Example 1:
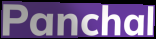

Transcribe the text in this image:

Panchal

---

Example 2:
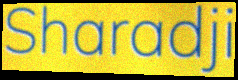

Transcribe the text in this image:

Sharadji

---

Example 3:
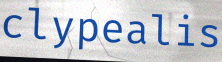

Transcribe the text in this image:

clypealis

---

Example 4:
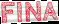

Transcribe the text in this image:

FINA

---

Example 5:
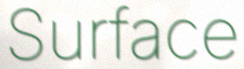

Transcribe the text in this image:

Surface